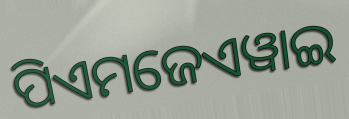
ପିଏମଜେଏୱାଇ